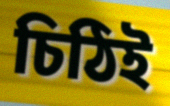
চিঠিই